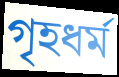
গৃহধর্ম